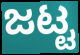
ಜಟ್ಟ